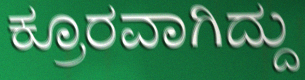
ಕ್ರೂರವಾಗಿದ್ದು